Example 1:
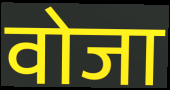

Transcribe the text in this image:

वोजा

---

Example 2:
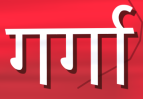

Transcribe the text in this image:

गर्गा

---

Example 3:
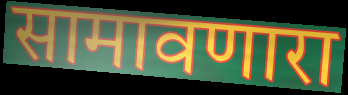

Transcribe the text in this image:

सामावणारा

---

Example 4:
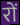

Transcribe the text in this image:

रों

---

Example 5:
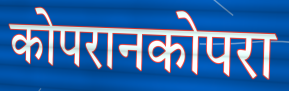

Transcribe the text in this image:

कोपरानकोपरा